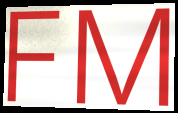
FM